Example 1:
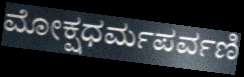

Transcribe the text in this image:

ಮೋಕ್ಷಧರ್ಮಪರ್ವಣಿ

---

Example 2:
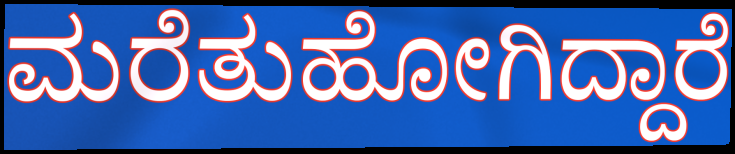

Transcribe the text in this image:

ಮರೆತುಹೋಗಿದ್ದಾರೆ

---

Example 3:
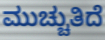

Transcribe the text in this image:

ಮುಚ್ಚುತಿದೆ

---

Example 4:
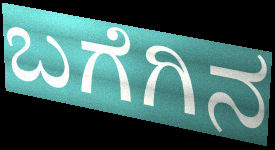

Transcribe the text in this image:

ಬಗೆಗಿನ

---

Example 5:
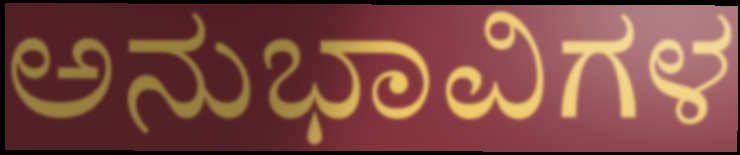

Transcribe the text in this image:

ಅನುಭಾವಿಗಳ